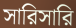
সারিসারি